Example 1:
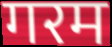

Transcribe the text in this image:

गरम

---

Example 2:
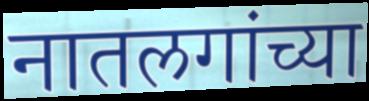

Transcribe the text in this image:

नातलगांच्या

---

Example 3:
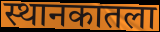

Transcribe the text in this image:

स्थानकातला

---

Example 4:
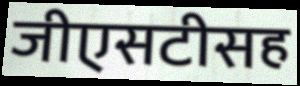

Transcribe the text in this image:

जीएसटीसह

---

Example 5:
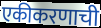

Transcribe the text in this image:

एकीकरणाची